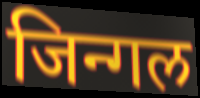
जिन्गल